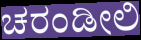
ಚರಂಡೀಲಿ